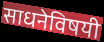
साधनेविषयी